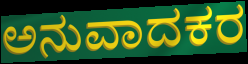
ಅನುವಾದಕರ